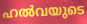
ഹൽവയുടെ